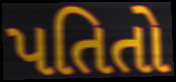
પતિતો